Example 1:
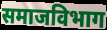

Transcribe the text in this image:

समाजविभाग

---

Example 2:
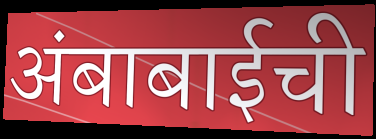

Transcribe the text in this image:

अंबाबाईची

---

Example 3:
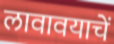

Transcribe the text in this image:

लावावयाचें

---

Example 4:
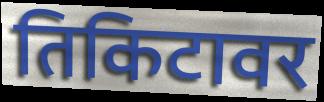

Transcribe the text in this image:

तिकिटावर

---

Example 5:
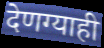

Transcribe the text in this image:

देणग्याही